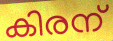
കിരന്